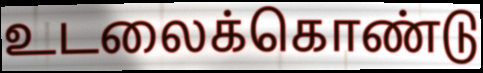
உடலைக்கொண்டு